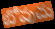
బోవుచు